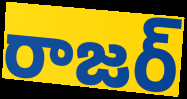
రాజర్